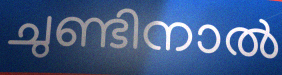
ചുണ്ടിനാൽ